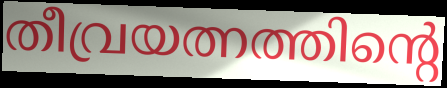
തീവ്രയത്നത്തിന്റെ